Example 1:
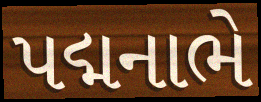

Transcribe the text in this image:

પદ્મનાભે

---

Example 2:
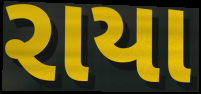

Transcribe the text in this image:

રાયા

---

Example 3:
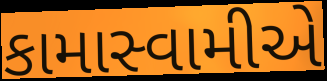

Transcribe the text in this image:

કામાસ્વામીએ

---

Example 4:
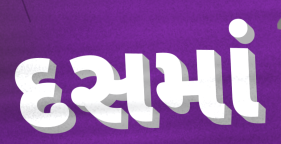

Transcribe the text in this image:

દસમાં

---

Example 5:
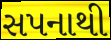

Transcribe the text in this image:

સપનાથી